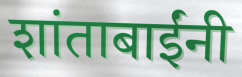
शांताबाईंनी